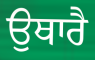
ਉਥਾਰੈ